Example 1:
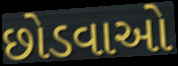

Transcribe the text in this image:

છોડવાઓ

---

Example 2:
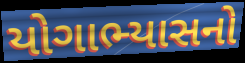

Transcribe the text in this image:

યોગાભ્યાસનો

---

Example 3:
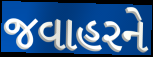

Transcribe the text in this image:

જવાહરને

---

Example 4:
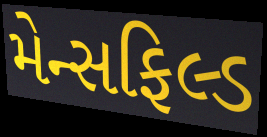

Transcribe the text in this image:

મેન્સફિલ્ડ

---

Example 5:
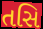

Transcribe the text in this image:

તસિ